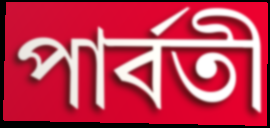
পার্বতী